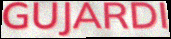
GUJARDI